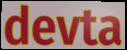
devta